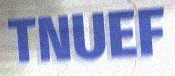
TNUEF